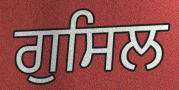
ਗੁਸਿਲ